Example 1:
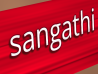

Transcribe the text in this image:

sangathi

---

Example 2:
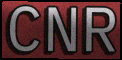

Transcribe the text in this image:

CNR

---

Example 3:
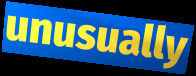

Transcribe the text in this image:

unusually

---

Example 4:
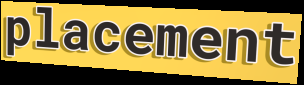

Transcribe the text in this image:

placement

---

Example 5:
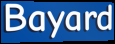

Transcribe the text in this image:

Bayard